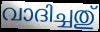
വാദിച്ചതു്